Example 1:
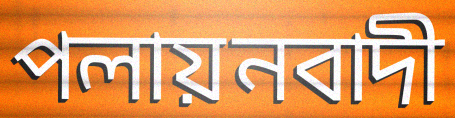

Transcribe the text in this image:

পলায়নবাদী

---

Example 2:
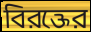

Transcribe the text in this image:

বিরক্তের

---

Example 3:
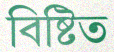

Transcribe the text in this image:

বিষ্টিত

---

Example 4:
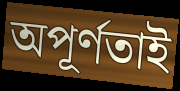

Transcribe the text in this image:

অপূর্ণতাই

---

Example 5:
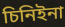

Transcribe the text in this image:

চিনিইনা